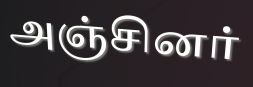
அஞ்சினர்